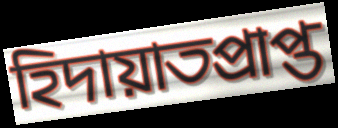
হিদায়াতপ্রাপ্ত